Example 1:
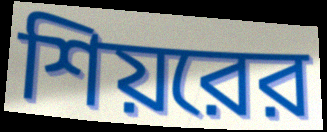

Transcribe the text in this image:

শিয়রের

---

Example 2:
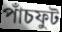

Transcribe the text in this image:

পাঁচফুট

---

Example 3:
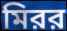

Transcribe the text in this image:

মিরর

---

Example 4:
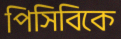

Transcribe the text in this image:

পিসিবিকে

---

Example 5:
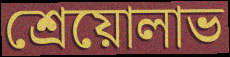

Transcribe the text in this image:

শ্রেয়োলাভ